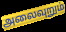
அலைவுறும்